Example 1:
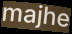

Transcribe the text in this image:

majhe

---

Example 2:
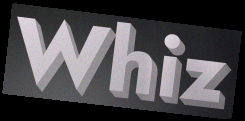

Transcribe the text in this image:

Whiz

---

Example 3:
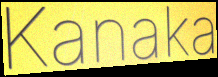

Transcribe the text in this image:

Kanaka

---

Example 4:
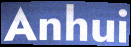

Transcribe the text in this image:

Anhui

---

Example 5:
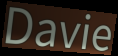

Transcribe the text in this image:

Davie